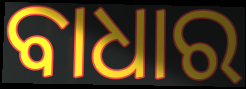
ବାଧାର